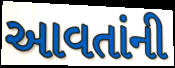
આવતાંની